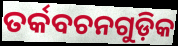
ତର୍କବଚନଗୁଡ଼ିକ